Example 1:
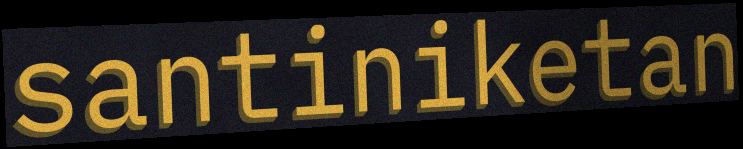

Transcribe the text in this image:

santiniketan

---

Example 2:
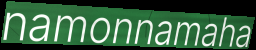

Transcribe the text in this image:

namonnamaha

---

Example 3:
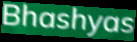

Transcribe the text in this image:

Bhashyas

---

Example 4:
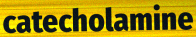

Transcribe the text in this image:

catecholamine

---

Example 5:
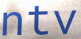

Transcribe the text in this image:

ntv